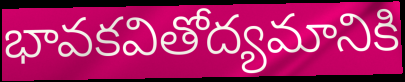
భావకవితోద్యమానికి